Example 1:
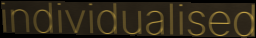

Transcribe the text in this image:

individualised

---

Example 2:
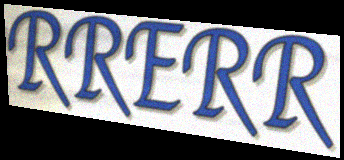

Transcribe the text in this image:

RRERR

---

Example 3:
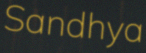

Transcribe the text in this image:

Sandhya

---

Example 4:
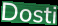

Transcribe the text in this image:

Dosti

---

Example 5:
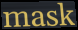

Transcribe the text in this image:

mask